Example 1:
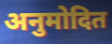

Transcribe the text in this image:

अनुमोदित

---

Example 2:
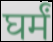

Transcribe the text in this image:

घर्मं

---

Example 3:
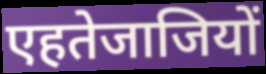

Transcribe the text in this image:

एहतेजाजियों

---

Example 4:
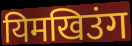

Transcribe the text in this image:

यिमखिउंग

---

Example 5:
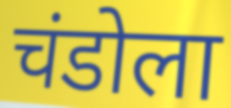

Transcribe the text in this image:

चंडोला